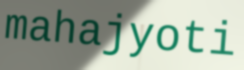
mahajyoti